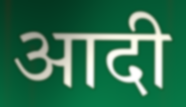
आदी